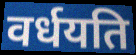
वर्धयति